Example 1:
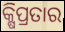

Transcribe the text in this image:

କ୍ଷିପ୍ରତାର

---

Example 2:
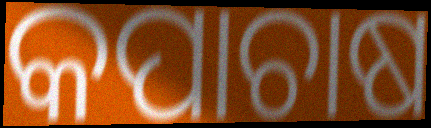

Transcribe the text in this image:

କପାଚାଷ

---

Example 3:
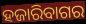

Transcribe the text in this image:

ହଜାରିବାଗର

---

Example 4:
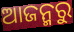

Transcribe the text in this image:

ଆଜନ୍ମରୁ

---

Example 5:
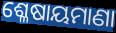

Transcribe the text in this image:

ଶ୍ଳେଷାୟମାଣା